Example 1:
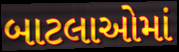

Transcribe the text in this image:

બાટલાઓમાં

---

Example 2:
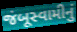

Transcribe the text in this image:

જંબૂસ્વામીનું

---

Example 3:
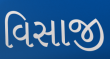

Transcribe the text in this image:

વિસાજી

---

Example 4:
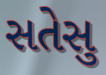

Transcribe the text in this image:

સતેસુ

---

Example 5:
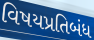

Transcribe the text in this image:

વિષયપ્રતિબંધ